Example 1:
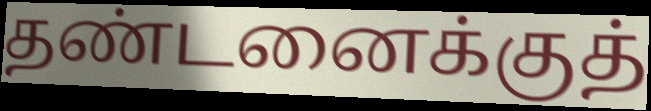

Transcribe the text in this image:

தண்டனைக்குத்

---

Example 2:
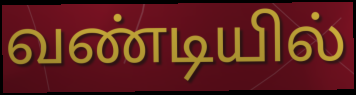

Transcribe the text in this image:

வண்டியில்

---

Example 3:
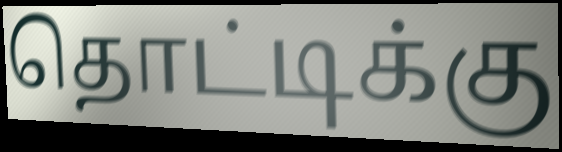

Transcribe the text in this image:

தொட்டிக்கு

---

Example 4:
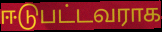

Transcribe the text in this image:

ஈடுபட்டவராக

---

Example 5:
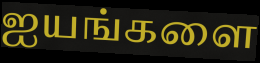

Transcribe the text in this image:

ஐயங்களை